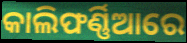
କାଲିଫର୍ଣ୍ଣିଆରେ